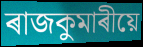
ৰাজকুমাৰীয়ে